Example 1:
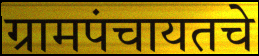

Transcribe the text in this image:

ग्रामपंचायतचे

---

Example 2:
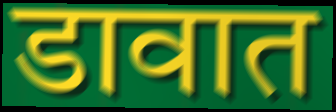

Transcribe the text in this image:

डावात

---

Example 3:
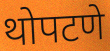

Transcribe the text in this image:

थोपटणे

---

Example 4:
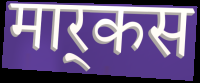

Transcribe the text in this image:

मार्कस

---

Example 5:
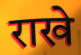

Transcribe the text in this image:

राखे